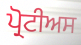
ਪ੍ਰੋਟੀਅਸ